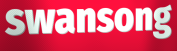
swansong